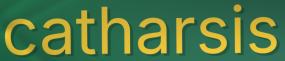
catharsis